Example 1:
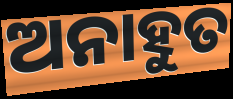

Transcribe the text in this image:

ଅନାହୁତ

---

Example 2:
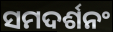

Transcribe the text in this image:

ସମଦର୍ଶନଂ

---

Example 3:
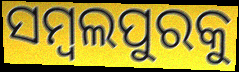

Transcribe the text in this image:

ସମ୍ୱଲପୁରକୁ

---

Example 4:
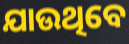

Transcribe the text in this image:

ଯାଉଥିବେ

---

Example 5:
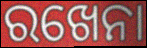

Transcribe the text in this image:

ରଖେନା